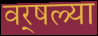
वर्षल्या